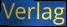
Verlag